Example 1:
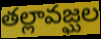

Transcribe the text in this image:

తల్లావజ్ఘల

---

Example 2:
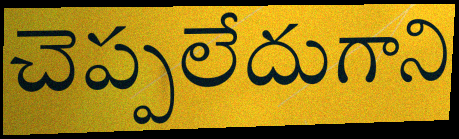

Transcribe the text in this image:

చెప్పలేదుగాని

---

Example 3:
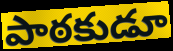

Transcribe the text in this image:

పాఠకుడూ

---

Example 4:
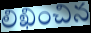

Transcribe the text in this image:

లిఖించిన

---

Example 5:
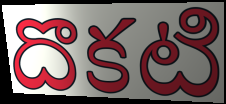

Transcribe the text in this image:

దొకటి